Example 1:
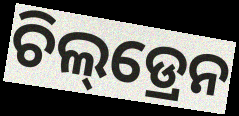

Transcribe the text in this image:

ଚିଲ୍‌ଡ୍ରେନ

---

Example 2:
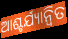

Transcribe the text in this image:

ଆଶ୍ଚର୍ଯ୍ୟାନ୍ୱିତ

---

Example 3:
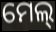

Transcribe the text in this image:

ମେଲ୍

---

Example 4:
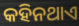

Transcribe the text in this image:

କହିନଥାଏ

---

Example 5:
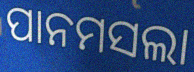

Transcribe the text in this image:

ପାନମସଲା